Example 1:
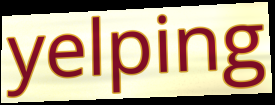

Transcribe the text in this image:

yelping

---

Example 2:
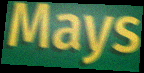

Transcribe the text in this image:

Mays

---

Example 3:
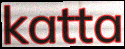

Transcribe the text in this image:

katta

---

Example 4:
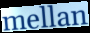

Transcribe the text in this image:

mellan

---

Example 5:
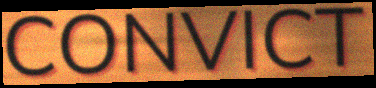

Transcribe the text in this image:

CONVICT